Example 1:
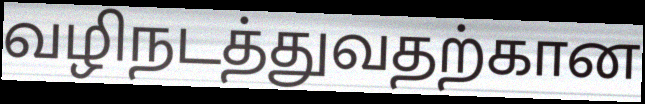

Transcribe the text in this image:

வழிநடத்துவதற்கான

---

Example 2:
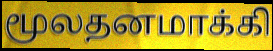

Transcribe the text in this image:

மூலதனமாக்கி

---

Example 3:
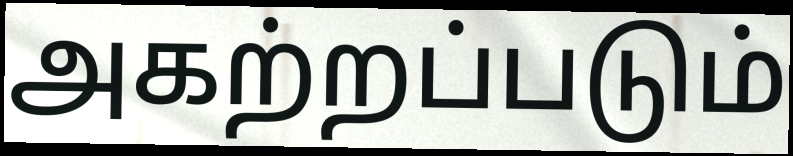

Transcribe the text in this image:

அகற்றப்படும்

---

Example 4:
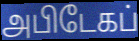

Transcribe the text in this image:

அபிடேகப்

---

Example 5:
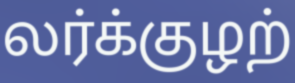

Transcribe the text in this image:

லர்க்குழற்